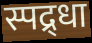
स्पद्र्धा